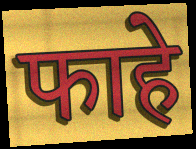
फाहे